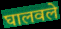
घालवले